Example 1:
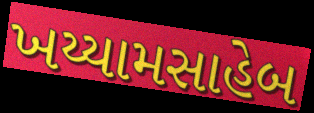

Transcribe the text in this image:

ખય્યામસાહેબ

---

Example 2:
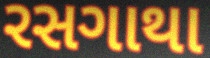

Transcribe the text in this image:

રસગાથા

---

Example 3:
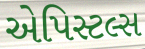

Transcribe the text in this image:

એપિસ્ટલ્સ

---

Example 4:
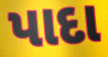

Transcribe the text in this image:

પાદા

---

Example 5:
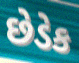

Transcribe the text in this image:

છેડેક